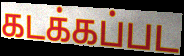
கடக்கப்பட